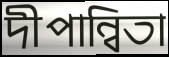
দীপান্বিতা